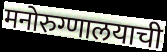
मनोरुग्णालयाची